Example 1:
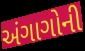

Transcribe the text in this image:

અંગાગોની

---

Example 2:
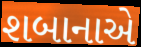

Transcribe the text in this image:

શબાનાએ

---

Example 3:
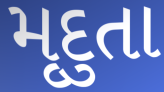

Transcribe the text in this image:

મૃદુતા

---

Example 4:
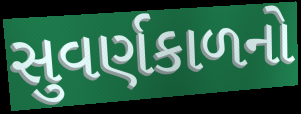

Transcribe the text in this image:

સુવર્ણકાળનો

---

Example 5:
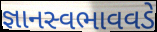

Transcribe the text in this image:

જ્ઞાનસ્વભાવવડે